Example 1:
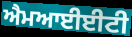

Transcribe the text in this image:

ਐਮਆਈਈਟੀ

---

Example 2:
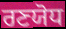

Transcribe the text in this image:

ਰਣਯੋਧ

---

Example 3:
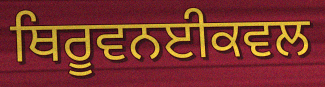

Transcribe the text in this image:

ਥਿਰੂਵਨਈਕਵਲ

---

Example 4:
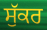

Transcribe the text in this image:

ਸੁੱਕਰ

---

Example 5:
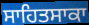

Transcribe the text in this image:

ਸਾਹਿਤਸਾਕਾ